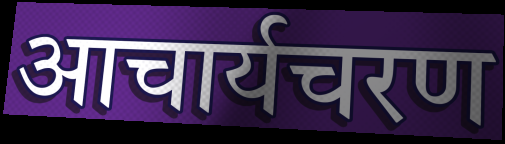
आचार्यचरण